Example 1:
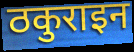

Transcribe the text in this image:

ठकुराइन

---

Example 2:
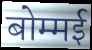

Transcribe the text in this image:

बोम्मई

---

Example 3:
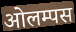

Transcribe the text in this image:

ओलम्पस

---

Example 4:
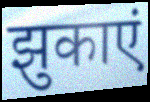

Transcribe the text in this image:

झुकाएं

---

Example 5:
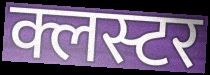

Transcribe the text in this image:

क्‍लस्‍टर